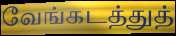
வேங்கடத்துத்